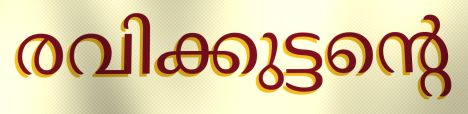
രവിക്കുട്ടന്റെ